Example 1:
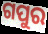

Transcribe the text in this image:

ଗପୁର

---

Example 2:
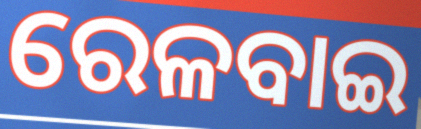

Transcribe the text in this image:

ରେଳବାଇ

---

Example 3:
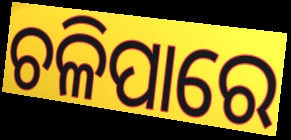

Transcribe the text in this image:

ଚଳିପାରେ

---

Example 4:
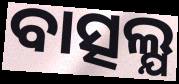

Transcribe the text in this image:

ବାତ୍ସଲ୍ଯ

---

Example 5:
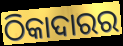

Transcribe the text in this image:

ଠିକାଦାରର